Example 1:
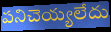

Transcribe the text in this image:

పనిచెయ్యలేదు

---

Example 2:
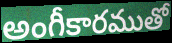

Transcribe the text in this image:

అంగీకారముతో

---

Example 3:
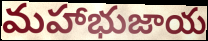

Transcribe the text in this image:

మహాభుజాయ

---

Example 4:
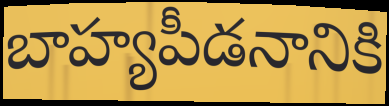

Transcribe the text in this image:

బాహ్యపీడనానికి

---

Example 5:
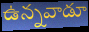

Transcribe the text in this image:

ఉన్నవాడూ